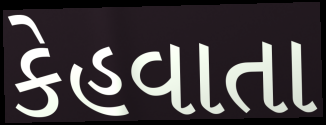
કેહવાતા